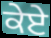
ਕੇਏ